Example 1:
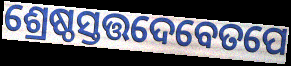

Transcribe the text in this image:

ଶ୍ରେଷ୍ଠସ୍ତତ୍ତଦେବେତପେ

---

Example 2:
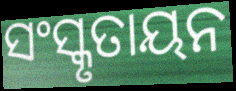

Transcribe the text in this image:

ସଂସ୍କୃତାୟନ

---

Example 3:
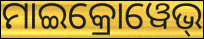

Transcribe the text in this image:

ମାଇକ୍ରୋୱେଭ୍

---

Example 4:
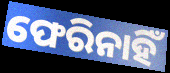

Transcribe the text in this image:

ଫେରିନାହିଁ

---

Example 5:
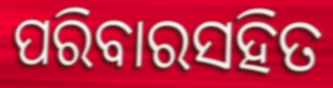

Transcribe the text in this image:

ପରିବାରସହିତ